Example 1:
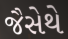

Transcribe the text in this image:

જૈસેથે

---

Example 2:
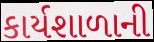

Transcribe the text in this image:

કાર્યશાળાની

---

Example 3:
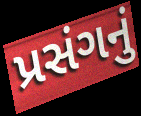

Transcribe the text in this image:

પ્રસંગનું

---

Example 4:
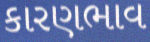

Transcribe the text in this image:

કારણભાવ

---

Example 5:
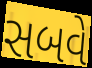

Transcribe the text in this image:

સબવે